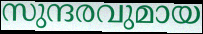
സുന്ദരവുമായ